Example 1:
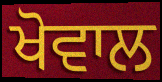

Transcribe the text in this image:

ਖੋਵਾਲ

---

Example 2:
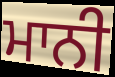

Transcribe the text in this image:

ਮਾਨੀ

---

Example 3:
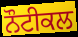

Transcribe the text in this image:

ਨੌਟੀਕਲ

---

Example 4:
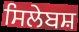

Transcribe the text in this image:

ਸਿਲੇਬਸ਼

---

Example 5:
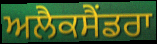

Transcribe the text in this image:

ਅਲੈਕਸੈਂਡਰਾ